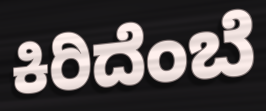
ಕಿರಿದೆಂಬೆ